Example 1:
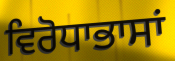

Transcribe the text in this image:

ਵਿਰੋਧਾਭਾਸਾਂ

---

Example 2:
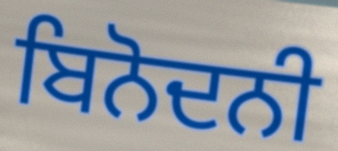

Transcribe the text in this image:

ਬਿਨੋਦਨੀ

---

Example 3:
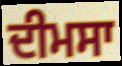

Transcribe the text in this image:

ਦੀਮਸਾ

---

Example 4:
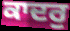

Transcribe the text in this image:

ਕਾਦਰੁ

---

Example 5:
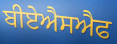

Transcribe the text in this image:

ਬੀਏਐਸਐਫ